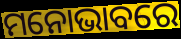
ମନୋଭାବରେ